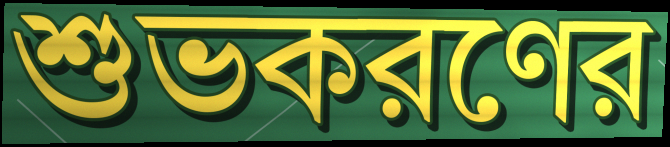
শুভকরণের